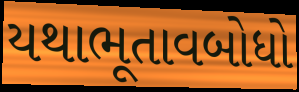
યથાભૂતાવબોધો